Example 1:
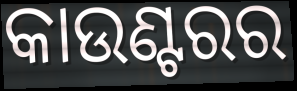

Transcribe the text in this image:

କାଉଣ୍ଟରର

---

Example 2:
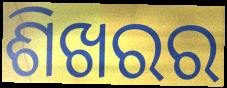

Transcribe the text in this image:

ଶିଖରର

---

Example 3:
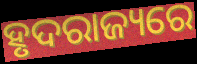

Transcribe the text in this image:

ହୃଦରାଜ୍ୟରେ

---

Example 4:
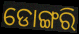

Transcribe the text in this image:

ଡୋଙ୍ଗରି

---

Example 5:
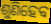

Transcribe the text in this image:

ଶୁଣିହେବ